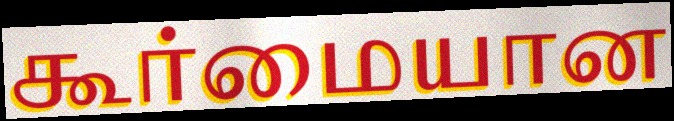
கூர்மையான